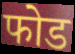
फोड